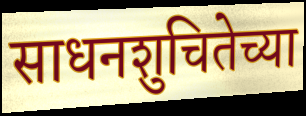
साधनशुचितेच्या